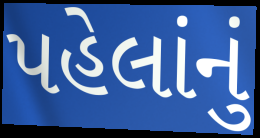
પહેલાંનું